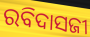
ରବିଦାସଜୀ